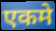
एकमे